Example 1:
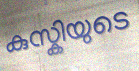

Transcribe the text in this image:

കുസ്കിയുടെ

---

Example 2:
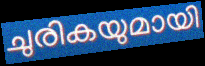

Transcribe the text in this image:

ചുരികയുമായി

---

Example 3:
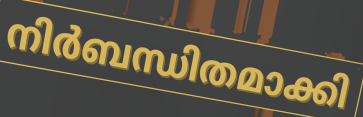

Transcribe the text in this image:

നിർബന്ധിതമാക്കി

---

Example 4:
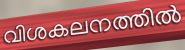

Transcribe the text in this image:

വിശകലനത്തിൽ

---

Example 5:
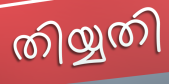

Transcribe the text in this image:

തിയ്യതി